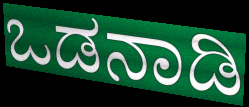
ಒಡನಾಡಿ